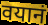
वयानं